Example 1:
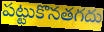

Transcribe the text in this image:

పట్టుకొనతగదు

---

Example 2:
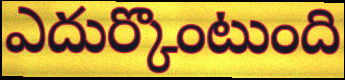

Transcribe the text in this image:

ఎదుర్కొంటుంది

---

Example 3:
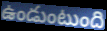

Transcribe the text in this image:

ఉండుంటుంది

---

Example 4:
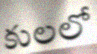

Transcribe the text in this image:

కులలో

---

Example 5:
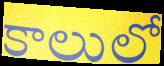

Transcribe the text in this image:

కాలులో